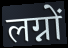
लग्नों